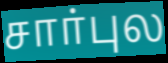
சார்புல